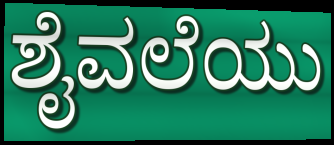
ಶೈವಲೆಯು